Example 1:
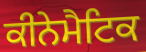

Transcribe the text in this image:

ਕੀਨੇਮੈਟਿਕ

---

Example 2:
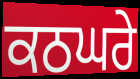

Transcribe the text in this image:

ਕਠਘਰੇ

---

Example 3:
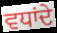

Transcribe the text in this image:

ਵਧਾਂਦੇ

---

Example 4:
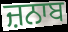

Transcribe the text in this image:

ਜ਼ਨਾਬ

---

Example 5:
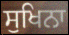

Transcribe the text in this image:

ਸੁਖਿਨਾ